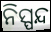
ନିସ୍ପନ୍ଦ